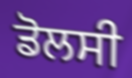
ਡੋਲਸੀ